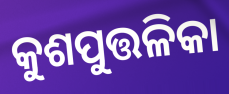
କୁଶପୁତ୍ତଳିକା